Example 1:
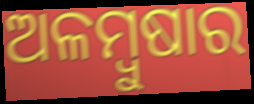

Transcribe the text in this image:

ଅଳମ୍ବୁଷାର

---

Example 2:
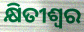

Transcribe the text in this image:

କ୍ଷିତୀଶ୍ୱର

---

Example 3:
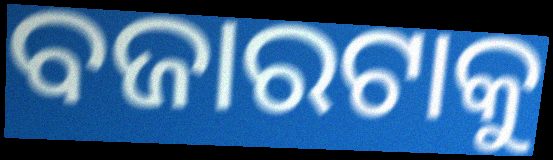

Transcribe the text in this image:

ବଜାରଟାକୁ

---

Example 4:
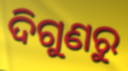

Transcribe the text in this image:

ଦିଗୁଣରୁ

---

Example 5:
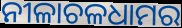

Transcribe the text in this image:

ନୀଳାଚଳଧାମର